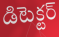
డిటెక్టర్